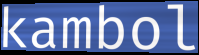
kambol